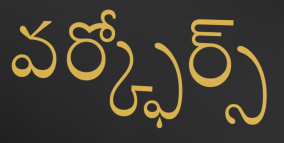
వర్క్ఫోర్స్